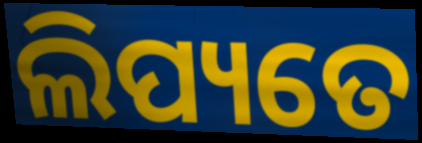
ଲିପ୍ୟତେ